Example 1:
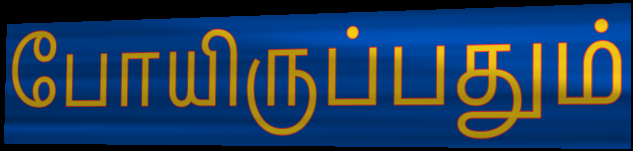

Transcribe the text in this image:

போயிருப்பதும்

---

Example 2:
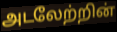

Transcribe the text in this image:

அடலேற்றின்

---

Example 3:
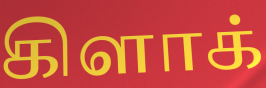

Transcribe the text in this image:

கிளாக்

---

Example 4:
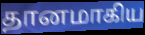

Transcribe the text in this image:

தானமாகிய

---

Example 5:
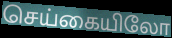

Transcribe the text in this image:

செய்கையிலோ